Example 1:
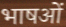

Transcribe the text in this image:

भाषओं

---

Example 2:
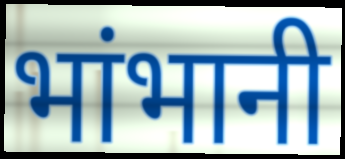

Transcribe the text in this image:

भांभानी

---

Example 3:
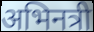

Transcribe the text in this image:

अभिनत्री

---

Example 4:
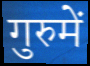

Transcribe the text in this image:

गुरुमें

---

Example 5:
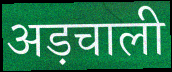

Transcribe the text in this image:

अड़चाली